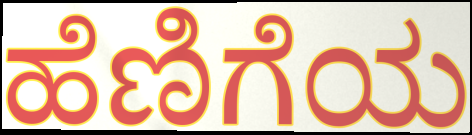
ಹೆಣಿಗೆಯ